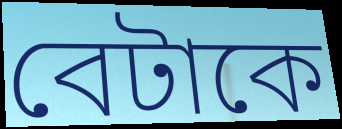
বেটাকে